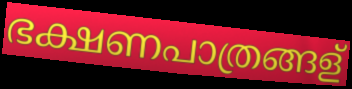
ഭക്ഷണപാത്രങ്ങള്